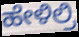
ಹೇಳಿಲ್ರಿ